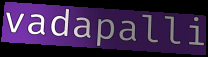
vadapalli